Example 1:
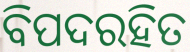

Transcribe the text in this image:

ବିପଦରହିତ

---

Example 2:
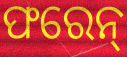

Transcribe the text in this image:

ଫରେନ୍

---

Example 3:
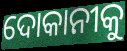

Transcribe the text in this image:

ଦୋକାନୀକୁ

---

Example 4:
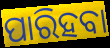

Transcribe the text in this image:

ପାରିହବା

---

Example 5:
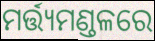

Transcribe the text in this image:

ମର୍ତ୍ତ୍ୟମଣ୍ଡଳରେ